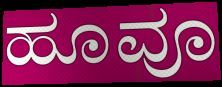
ಹೂವೂ